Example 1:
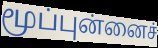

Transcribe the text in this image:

மூப்புன்னைச்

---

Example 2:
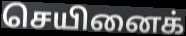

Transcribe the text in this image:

செயினைக்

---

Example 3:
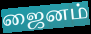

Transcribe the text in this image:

ஜைனம்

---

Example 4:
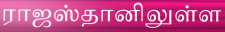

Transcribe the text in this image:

ராஜஸ்தானிலுள்ள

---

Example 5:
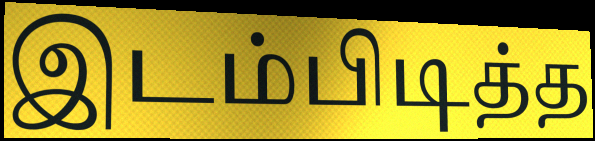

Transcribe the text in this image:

இடம்பிடித்த